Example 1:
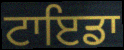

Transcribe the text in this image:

ਟਾਇਡਾ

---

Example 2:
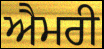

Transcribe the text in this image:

ਐਮਰੀ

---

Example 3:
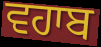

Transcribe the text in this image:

ਵਹਾਬ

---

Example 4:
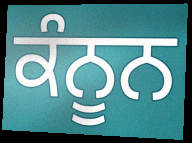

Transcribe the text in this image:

ਕੰਨੂਨ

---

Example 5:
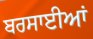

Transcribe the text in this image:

ਬਰਸਾਈਆਂ